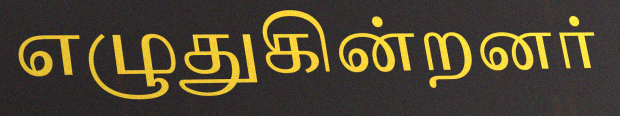
எழுதுகின்றனர்